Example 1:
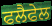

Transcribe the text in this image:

ਫਲੈਫੇਲ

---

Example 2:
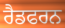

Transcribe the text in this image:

ਰੈਡਫਰਨ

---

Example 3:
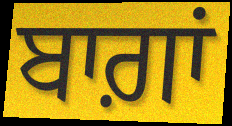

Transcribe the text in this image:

ਬਾਗ਼ਾਂ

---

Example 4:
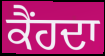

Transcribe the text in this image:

ਕੈਂਹਦਾ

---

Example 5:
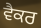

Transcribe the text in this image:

ਵੈਕਰ